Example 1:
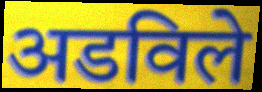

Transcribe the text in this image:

अडविले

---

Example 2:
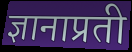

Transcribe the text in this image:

ज्ञानाप्रती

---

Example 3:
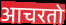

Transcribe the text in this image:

आचरतो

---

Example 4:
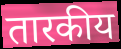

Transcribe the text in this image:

तारकीय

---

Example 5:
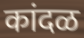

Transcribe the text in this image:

कांदळ